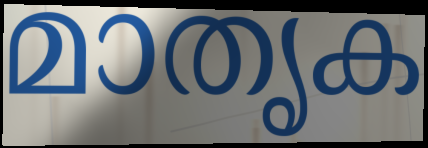
മാതൃക